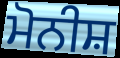
ਮੋਨੀਸ਼